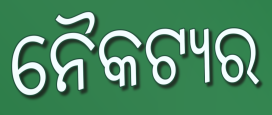
ନୈକଟ୍ୟର